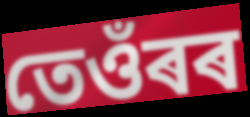
তেওঁৰৰ